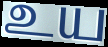
உய